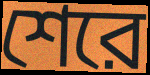
শেরে